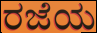
ರಜೆಯ